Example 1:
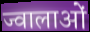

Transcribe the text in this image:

ज्वालाओं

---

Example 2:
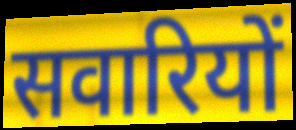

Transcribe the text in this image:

सवारियों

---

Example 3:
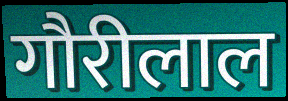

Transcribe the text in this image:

गौरीलाल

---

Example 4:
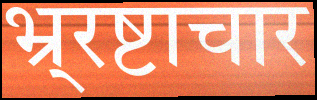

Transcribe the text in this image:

भ्र्रष्टाचार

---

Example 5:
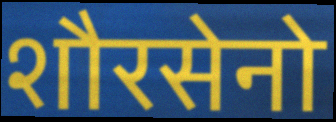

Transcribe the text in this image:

शौरसेनो